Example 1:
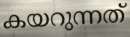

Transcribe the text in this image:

കയറുന്നത്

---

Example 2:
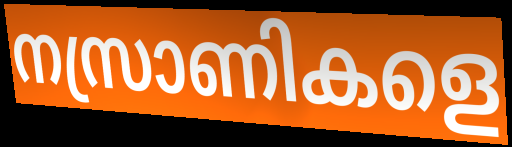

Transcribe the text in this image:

നസ്രാണികളെ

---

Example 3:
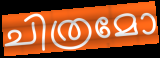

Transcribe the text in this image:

ചിത്രമോ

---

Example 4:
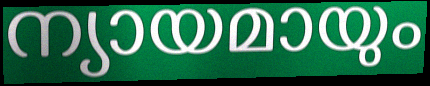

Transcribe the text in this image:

ന്യായമായും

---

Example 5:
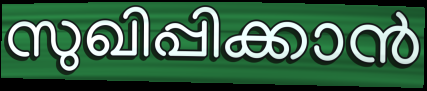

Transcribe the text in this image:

സുഖിപ്പിക്കാൻ